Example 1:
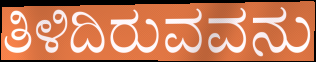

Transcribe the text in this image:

ತಿಳಿದಿರುವವನು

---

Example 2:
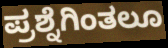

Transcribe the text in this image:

ಪ್ರಶ್ನೆಗಿಂತಲೂ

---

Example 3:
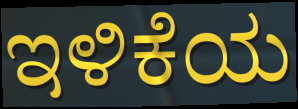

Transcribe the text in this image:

ಇಳಿಕೆಯ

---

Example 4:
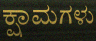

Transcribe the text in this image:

ಕ್ಷಾಮಗಳು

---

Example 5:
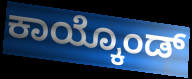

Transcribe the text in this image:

ಕಾಯ್ಕೊಂಡ್